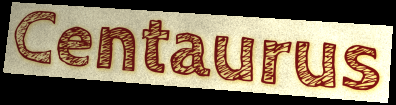
Centaurus